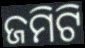
ଜମିଟି